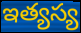
ఇత్యస్య